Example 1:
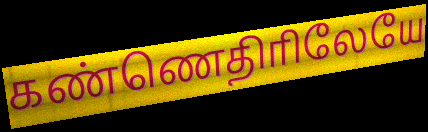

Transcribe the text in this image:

கண்ணெதிரிலேயே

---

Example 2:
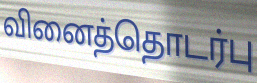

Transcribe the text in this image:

வினைத்தொடர்பு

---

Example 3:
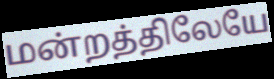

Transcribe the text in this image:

மன்றத்திலேயே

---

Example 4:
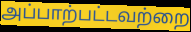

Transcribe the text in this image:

அப்பாற்பட்டவற்றை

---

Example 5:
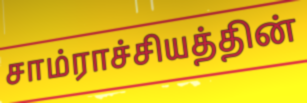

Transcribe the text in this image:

சாம்ராச்சியத்தின்